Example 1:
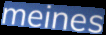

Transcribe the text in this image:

meines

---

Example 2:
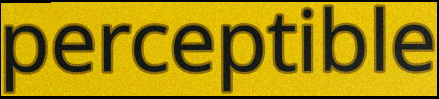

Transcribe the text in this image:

perceptible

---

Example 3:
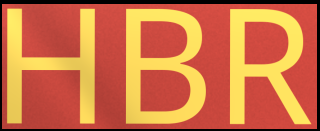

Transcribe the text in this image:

HBR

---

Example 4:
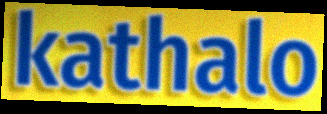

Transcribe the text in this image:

kathalo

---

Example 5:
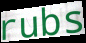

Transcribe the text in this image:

rubs